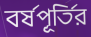
বর্ষপূর্তির